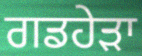
ਗਡਹੇੜਾ